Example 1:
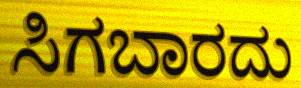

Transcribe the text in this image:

ಸಿಗಬಾರದು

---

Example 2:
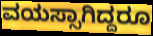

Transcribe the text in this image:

ವಯಸ್ಸಾಗಿದ್ದರೂ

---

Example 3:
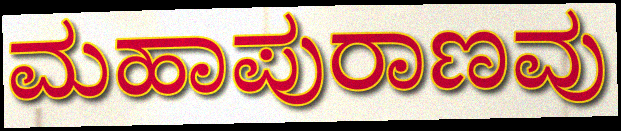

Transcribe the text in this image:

ಮಹಾಪುರಾಣವು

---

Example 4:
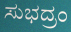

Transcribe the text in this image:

ಸುಭದ್ರಂ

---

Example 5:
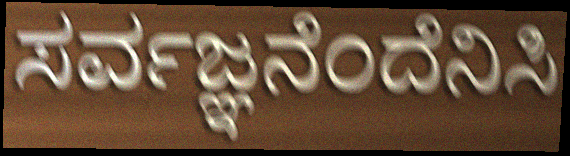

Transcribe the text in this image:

ಸರ್ವಜ್ಞನೆಂದೆನಿಸಿ